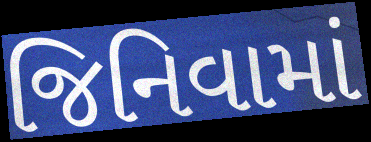
જિનિવામાં